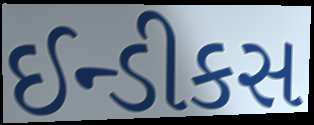
ઈન્ડીકસ